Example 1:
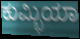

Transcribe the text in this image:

ಕುಮ್ಭಿಯಾ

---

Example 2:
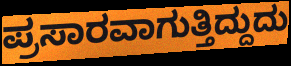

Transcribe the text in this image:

ಪ್ರಸಾರವಾಗುತ್ತಿದ್ದುದು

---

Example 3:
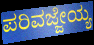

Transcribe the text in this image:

ಪರಿವಜ್ಜೇಯ್ಯ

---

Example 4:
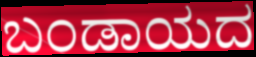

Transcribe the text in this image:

ಬಂಡಾಯದ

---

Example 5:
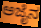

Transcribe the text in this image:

ಅಜೈನ